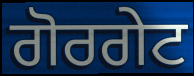
ਗੋਰਗੇਟ